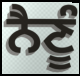
ਨੈਣੂੰ